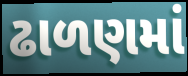
ઢાળણમાં